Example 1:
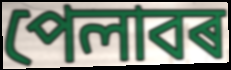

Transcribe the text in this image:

পেলাবৰ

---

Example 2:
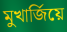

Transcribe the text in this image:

মুখাৰ্জিয়ে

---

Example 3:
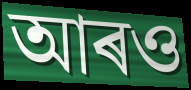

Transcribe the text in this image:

আৰও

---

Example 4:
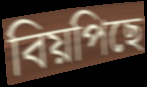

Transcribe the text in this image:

বিয়পিছে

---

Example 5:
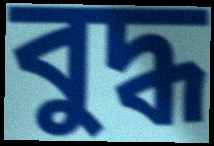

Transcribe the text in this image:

বুদ্ধ